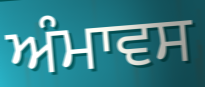
ਅੰਮਾਵਸ